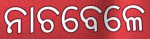
ନାଚବେଳେ